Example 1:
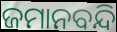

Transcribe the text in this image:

ଜମାନବନ୍ଦି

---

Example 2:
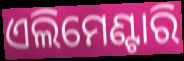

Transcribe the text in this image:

ଏଲିମେଣ୍ଟାରି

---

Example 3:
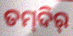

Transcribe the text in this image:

ତମ୍‍ଦିର୍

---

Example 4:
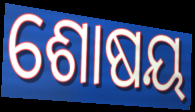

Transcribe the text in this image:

ଶୋଷୟ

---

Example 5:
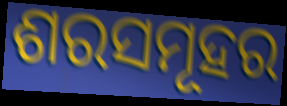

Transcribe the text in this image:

ଶରସମୂହର